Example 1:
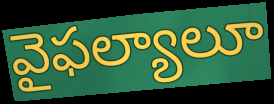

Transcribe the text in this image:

వైఫల్యాలూ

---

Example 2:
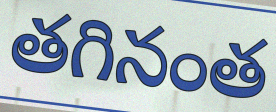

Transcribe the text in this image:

తగినంత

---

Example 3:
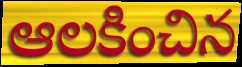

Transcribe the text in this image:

ఆలకించిన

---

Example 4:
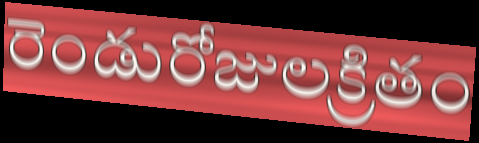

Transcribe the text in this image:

రెండురోజులక్రితం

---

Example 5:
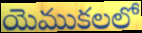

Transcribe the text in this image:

యెముకలలో